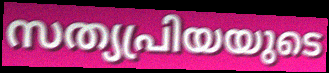
സത്യപ്രിയയുടെ